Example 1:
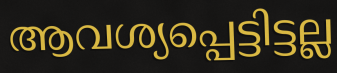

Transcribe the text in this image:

ആവശ്യപ്പെട്ടിട്ടല്ല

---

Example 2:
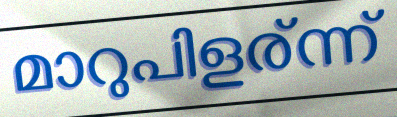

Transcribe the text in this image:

മാറുപിളര്ന്ന്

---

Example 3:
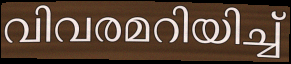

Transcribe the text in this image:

വിവരമറിയിച്ച്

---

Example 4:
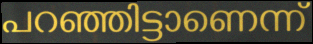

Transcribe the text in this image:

പറഞ്ഞിട്ടാണെന്ന്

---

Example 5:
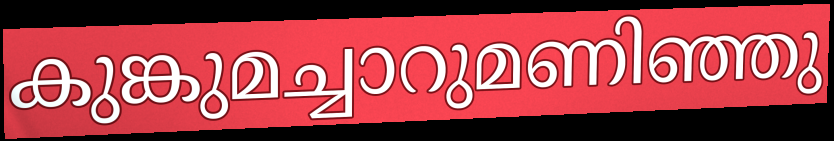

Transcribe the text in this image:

കുങ്കുമച്ചാറുമണിഞ്ഞു